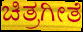
ಚಿತ್ರಗೀತೆ